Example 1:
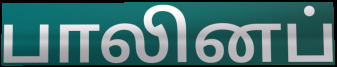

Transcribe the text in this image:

பாலினப்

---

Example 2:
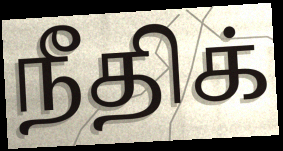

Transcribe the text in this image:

நீதிக்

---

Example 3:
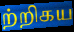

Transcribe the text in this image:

ற்றிகய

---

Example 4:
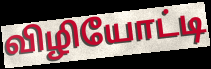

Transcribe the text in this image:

விழியோட்டி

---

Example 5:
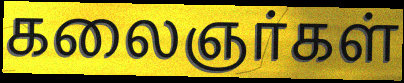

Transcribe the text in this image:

கலைஞர்கள்